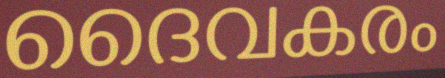
ദൈവകരം